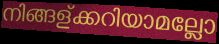
നിങ്ങള്ക്കറിയാമല്ലോ